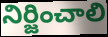
నిర్జించాలి